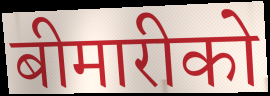
बीमारीको